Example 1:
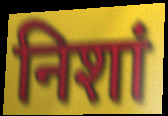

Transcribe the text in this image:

निशां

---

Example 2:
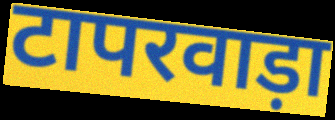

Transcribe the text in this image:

टापरवाड़ा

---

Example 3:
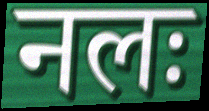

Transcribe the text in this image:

नलः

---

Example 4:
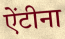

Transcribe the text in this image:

ऐंटीना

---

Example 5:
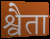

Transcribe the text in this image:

श्वैता